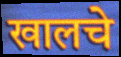
खालचे